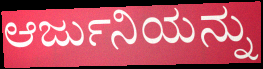
ಆರ್ಜುನಿಯನ್ನು